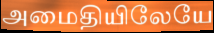
அமைதியிலேயே